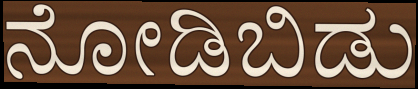
ನೋಡಿಬಿಡು